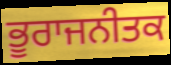
ਭੂਰਾਜਨੀਤਕ